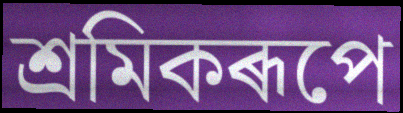
শ্ৰমিকৰূপে